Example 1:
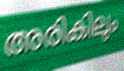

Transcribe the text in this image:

അരികിലും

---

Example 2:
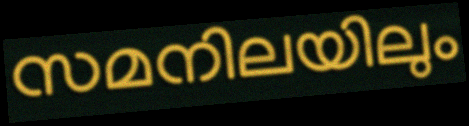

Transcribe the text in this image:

സമനിലയിലും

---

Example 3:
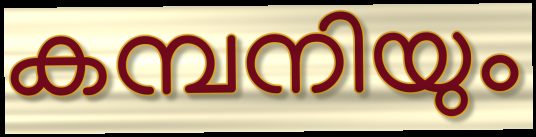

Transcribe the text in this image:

കമ്പനിയും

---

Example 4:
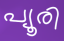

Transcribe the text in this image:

പ്യൂരി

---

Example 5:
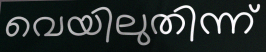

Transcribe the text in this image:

വെയിലുതിന്ന്